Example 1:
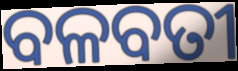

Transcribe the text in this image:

ବଳବତୀ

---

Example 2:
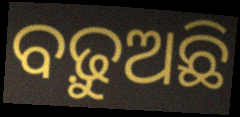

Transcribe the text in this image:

ବଢ଼ୁଅଛି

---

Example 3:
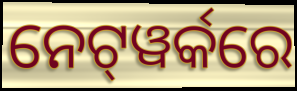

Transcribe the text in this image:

ନେଟ୍‍ୱର୍କରେ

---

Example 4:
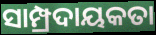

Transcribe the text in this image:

ସାମ୍ପ୍ରଦାୟକତା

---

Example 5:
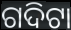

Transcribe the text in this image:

ଗଦିଟା